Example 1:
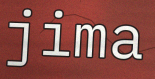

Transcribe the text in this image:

jima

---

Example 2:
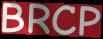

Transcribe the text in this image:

BRCP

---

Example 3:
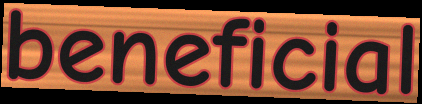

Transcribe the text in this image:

beneficial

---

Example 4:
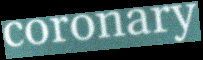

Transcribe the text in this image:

coronary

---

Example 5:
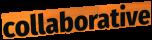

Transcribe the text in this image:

collaborative